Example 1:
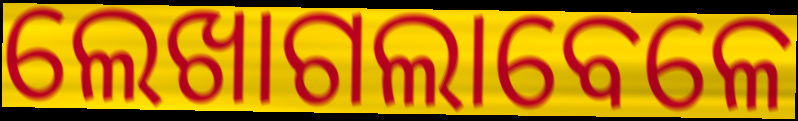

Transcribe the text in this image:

ଲେଖାଗଲାବେଳେ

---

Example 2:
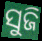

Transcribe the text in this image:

ସୁଜି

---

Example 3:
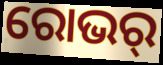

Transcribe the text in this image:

ରୋଭର୍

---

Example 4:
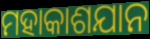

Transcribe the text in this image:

ମହାକାଶଯାନ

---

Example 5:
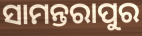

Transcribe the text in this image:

ସାମନ୍ତରାପୁର